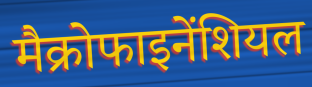
मैक्रोफाइनेंशियल